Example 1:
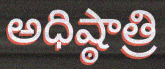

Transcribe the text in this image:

అధిష్ఠాత్రి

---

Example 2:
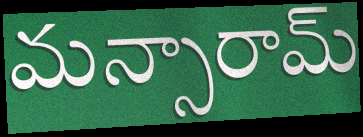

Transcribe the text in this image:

మన్సారామ్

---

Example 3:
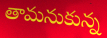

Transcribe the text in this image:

తామనుకున్న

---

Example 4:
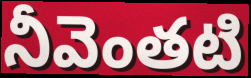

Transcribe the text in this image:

నీవెంతటి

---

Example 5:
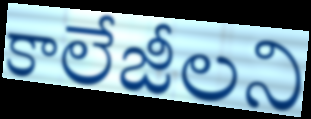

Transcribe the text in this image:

కాలేజీలని